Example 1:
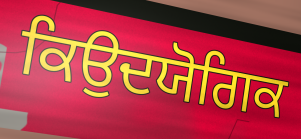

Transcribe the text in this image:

ਕਿਉਦਯੋਗਿਕ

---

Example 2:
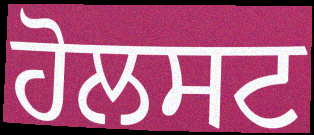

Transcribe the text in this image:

ਹੋਲਸਟ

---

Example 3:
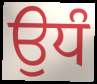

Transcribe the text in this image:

ਉਧੰ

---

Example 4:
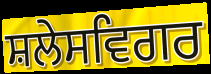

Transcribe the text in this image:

ਸ਼ਲੇਸਵਿਗਰ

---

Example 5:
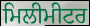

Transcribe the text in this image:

ਮਿਲੀਮੀਟਰ